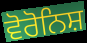
ਵੋਰੋਨਿਸ਼